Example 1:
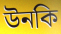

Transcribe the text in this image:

উনকি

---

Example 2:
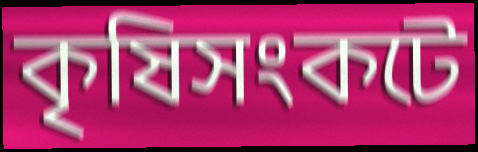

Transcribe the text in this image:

কৃষিসংকটে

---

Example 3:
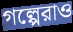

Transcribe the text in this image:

গল্পেরাও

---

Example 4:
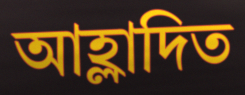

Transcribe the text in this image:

আহ্লাদিত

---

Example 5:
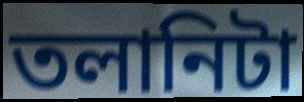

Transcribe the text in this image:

তলানিটা